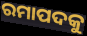
ରମାପଦକୁ